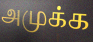
அமுக்க